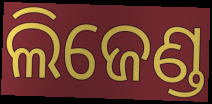
ଲିଜେଣ୍ଡ